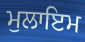
ਮੁਲਾਇਮ